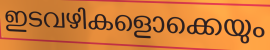
ഇടവഴികളൊക്കെയും